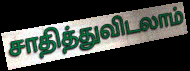
சாதித்துவிடலாம்